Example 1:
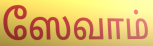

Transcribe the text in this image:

ஸேவாம்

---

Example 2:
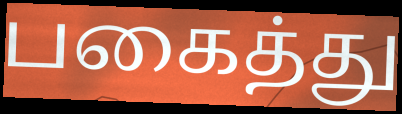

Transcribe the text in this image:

பகைத்து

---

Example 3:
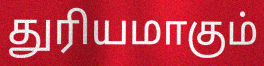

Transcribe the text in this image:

துரியமாகும்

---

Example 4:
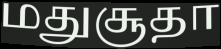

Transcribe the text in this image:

மதுசூதா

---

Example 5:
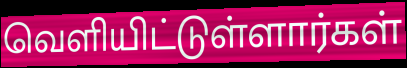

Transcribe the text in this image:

வெளியிட்டுள்ளார்கள்